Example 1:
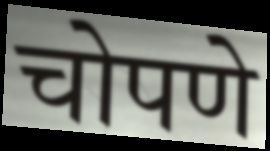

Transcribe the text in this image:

चोपणे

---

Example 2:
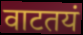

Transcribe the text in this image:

वाटतयं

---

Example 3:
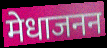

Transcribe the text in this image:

मेधाजनन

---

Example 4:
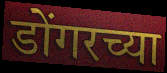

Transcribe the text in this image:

डोंगरच्या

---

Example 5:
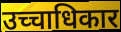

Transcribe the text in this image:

उच्चाधिकार